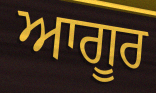
ਆਗੂਰ